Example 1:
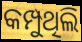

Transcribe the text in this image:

କମ୍ପୁଥିଲି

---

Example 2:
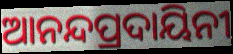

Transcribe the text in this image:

ଆନନ୍ଦପ୍ରଦାୟିନୀ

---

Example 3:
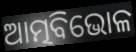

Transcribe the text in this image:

ଆତ୍ମବିଭୋଳ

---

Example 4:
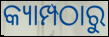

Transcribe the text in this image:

କ୍ୟାମ୍ପଠାରୁ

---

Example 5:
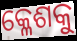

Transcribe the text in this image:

କ୍ଳେଶକୁ